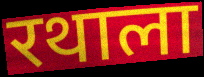
रथाला